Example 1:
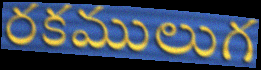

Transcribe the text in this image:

రకములుగ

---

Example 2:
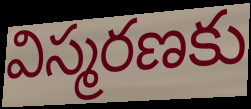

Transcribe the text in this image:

విస్మరణకు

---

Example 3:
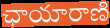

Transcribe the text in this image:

ఛాయారాణి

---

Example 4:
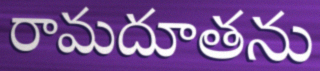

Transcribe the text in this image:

రామదూతను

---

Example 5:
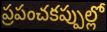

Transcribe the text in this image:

ప్రపంచకప్పుల్లో